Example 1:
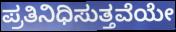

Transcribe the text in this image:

ಪ್ರತಿನಿಧಿಸುತ್ತವೆಯೇ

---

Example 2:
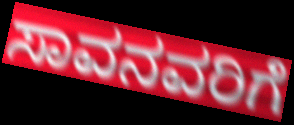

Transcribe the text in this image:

ಸಾವನವರಿಗೆ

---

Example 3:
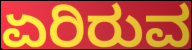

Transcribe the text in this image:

ಏರಿರುವ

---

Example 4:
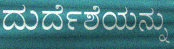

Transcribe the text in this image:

ದುರ್ದೆಶೆಯನ್ನು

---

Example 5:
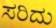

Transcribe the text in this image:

ಸರಿದು